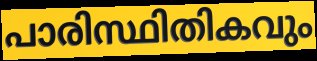
പാരിസ്ഥിതികവും